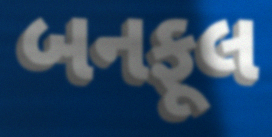
બનફૂલ